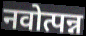
नवोत्पन्न